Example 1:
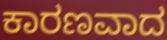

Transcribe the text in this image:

ಕಾರಣವಾದ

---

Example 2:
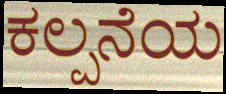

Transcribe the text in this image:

ಕಲ್ಪನೆಯ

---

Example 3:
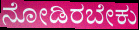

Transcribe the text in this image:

ನೋಡಿರಬೇಕು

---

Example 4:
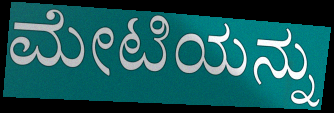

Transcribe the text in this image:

ಮೇಟಿಯನ್ನು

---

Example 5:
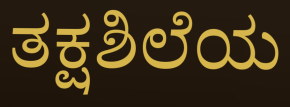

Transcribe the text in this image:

ತಕ್ಷಶಿಲೆಯ